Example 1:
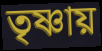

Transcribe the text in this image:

তৃষ্ণায়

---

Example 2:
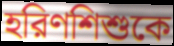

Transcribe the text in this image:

হরিণশিশুকে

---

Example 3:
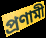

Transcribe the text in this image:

প্রণামী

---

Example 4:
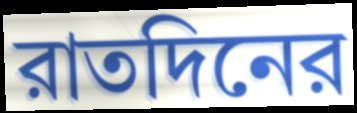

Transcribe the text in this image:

রাতদিনের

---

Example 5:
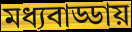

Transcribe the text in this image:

মধ্যবাড্ডায়